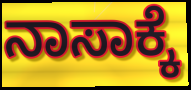
ನಾಸಾಕ್ಕೆ